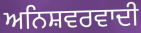
ਅਨਿਸ਼ਵਰਵਾਦੀ